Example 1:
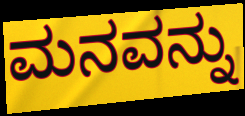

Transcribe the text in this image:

ಮನವನ್ನು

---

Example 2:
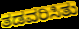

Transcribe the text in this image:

ತಡವರಿಸಿತು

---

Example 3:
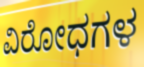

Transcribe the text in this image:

ವಿರೋಧಗಳ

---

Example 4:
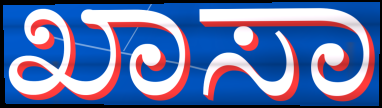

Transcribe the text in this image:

ಖಾಸಾ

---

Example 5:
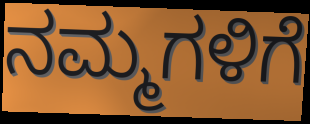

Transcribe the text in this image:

ನಮ್ಮಗಳಿಗೆ